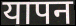
यापन